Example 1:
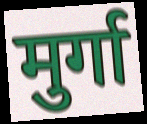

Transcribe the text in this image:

मुर्गा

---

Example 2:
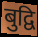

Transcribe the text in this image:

बुद्वि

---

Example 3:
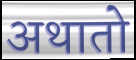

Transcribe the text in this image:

अथातो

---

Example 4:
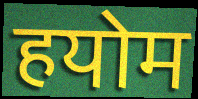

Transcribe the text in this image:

हयोम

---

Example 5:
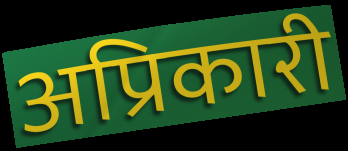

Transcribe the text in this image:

अप्रिकारी